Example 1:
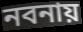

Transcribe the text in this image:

নবনায়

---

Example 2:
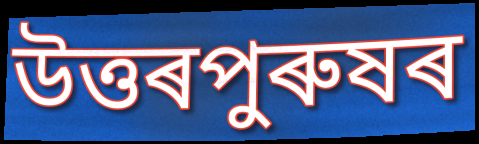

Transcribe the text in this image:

উত্তৰপুৰুষৰ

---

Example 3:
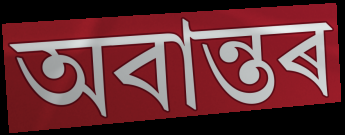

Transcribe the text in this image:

অবান্তৰ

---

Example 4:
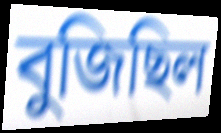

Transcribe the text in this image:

বুজিছিল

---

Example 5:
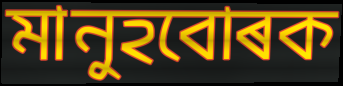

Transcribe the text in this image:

মানুহবোৰক